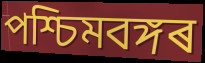
পশ্চিমবঙ্গৰ